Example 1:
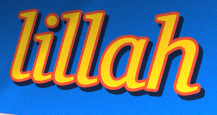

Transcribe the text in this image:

lillah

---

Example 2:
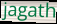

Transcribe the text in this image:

jagath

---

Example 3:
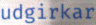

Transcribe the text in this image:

udgirkar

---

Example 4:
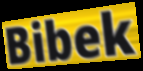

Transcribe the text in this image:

Bibek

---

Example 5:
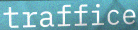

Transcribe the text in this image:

traffice